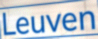
Leuven